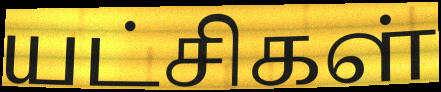
யட்சிகள்